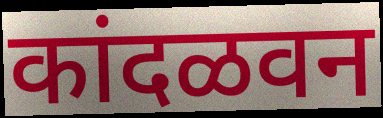
कांदळवन